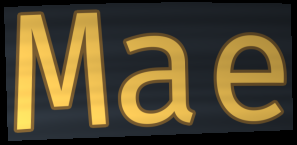
Mae